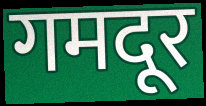
गमदूर